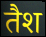
तैश